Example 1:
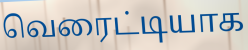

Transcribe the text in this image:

வெரைட்டியாக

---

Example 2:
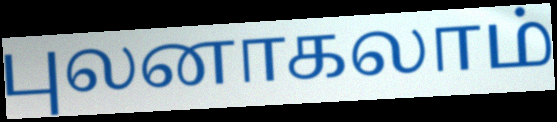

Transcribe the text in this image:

புலனாகலாம்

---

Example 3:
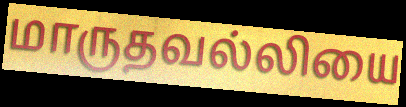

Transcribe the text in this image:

மாருதவல்லியை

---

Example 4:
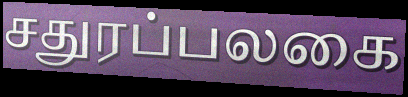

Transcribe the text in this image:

சதுரப்பலகை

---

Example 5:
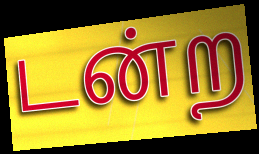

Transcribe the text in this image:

டன்ற